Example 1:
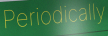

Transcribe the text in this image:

Periodically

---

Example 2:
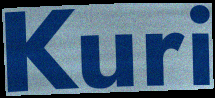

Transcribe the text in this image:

Kuri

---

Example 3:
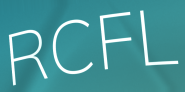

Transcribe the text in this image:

RCFL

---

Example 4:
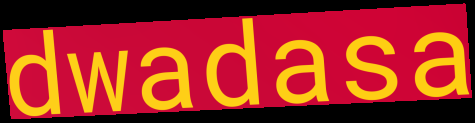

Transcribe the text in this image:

dwadasa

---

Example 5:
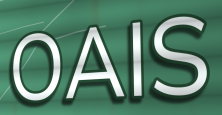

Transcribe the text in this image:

OAIS